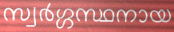
സ്വർഗ്ഗസ്ഥനായ